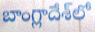
బాంగ్లాదేశ్‌లో